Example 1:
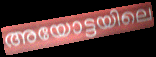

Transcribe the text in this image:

അയോട്ടയിലെ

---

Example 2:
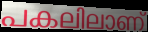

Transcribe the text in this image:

പകലിലാണ്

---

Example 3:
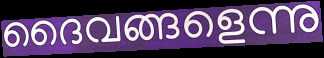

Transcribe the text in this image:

ദൈവങ്ങളെന്നു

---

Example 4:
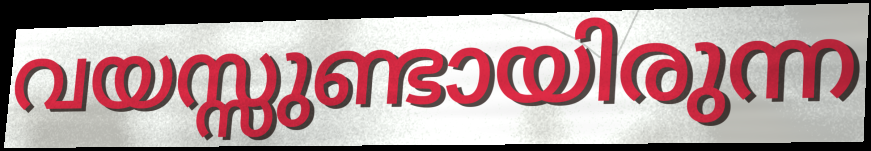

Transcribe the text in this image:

വയസ്സുണ്ടായിരുന്ന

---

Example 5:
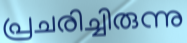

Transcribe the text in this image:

പ്രചരിച്ചിരുന്നു